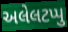
અલેલટપ્પુ